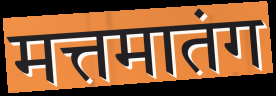
मत्तमातंग